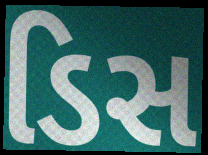
ડિસ